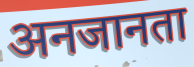
अनजानता